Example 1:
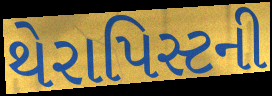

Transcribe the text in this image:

થેરાપિસ્ટની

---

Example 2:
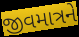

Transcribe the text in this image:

જીવમાત્રને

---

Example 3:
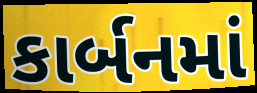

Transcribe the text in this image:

કાર્બનમાં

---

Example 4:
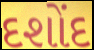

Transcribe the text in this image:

દશોંદ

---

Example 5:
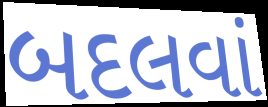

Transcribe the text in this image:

બદલવાં